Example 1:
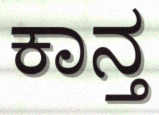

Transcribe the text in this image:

ಕಾನ್ತ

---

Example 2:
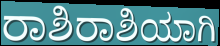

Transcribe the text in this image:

ರಾಶಿರಾಶಿಯಾಗಿ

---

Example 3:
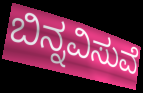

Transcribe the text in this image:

ಬಿನ್ನವಿಸುವೆ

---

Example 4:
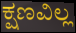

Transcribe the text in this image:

ಕ್ಷಣವಿಲ್ಲ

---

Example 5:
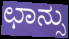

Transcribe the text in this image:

ಛಾನ್ಸು